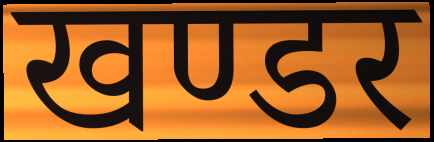
खण्डर